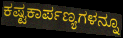
ಕಷ್ಟಕಾರ್ಪಣ್ಯಗಳನ್ನೂ